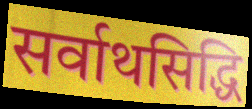
सर्वाथसिद्धि